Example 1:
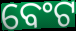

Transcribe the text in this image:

ବେଂଟ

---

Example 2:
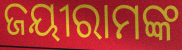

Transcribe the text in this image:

ଜୟୀରାମଙ୍କ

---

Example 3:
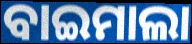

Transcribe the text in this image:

ବାଇମାଲା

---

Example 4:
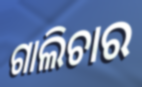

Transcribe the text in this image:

ଗାଲିଚାର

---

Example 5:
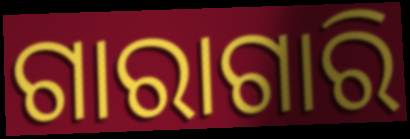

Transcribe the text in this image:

ଗାରାଗାରି